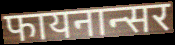
फायनान्सर